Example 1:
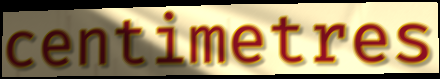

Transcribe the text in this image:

centimetres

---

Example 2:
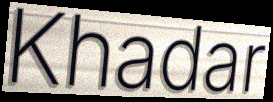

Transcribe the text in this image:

Khadar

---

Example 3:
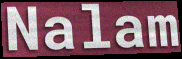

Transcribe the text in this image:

Nalam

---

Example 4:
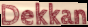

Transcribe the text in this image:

Dekkan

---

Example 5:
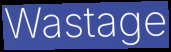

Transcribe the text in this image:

Wastage